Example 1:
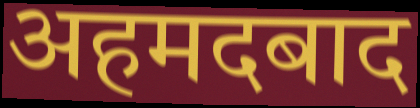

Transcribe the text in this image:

अहमदबाद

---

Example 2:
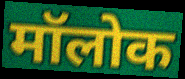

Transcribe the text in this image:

मॉलोक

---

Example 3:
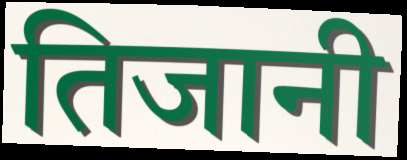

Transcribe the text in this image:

तिजानी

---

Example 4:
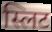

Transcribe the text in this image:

स्लिट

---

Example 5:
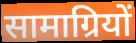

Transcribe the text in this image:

सामाग्रियों